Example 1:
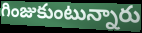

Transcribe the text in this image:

గింజుకుంటున్నారు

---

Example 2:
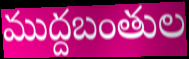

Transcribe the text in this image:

ముద్దబంతుల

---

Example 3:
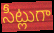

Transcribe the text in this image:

సీట్లుగా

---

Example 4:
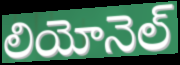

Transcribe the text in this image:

లియోనెల్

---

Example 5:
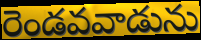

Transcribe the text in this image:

రెండవవాడును